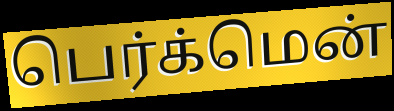
பெர்க்மென்